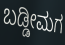
ಬಡ್ಡೀಮಗ